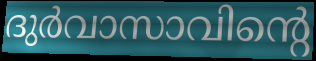
ദുർവാസാവിന്റെ